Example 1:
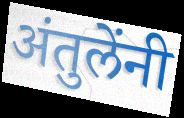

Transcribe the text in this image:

अंतुलेंनी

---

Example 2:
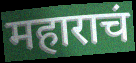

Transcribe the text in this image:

महाराचं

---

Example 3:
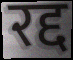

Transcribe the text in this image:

रद्द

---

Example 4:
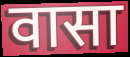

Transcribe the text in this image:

वासा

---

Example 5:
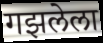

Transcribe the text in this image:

गझलेला